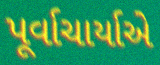
પૂર્વાચાર્યાએ